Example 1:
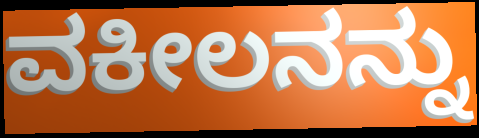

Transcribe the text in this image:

ವಕೀಲನನ್ನು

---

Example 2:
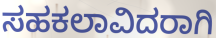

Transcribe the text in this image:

ಸಹಕಲಾವಿದರಾಗಿ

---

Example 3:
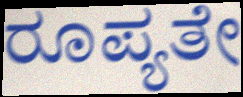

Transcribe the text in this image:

ರೂಪ್ಯತೇ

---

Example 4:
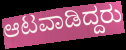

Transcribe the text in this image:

ಆಟವಾಡಿದ್ದರು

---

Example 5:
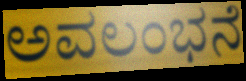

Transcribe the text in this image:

ಅವಲಂಭನೆ